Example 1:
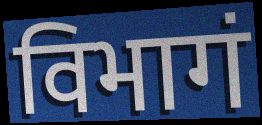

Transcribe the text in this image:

विभागं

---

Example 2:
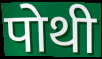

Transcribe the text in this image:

पोथी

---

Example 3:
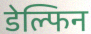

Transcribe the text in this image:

डेल्फिन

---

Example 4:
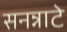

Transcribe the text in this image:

सनन्नाटे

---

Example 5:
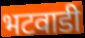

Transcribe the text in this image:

भटवाडी